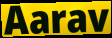
Aarav